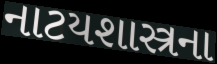
નાટયશાસ્ત્રના